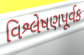
વિશ્લેષણપૂર્વક